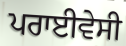
ਪਰਾਈਵੇਸੀ